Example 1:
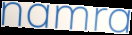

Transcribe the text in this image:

namra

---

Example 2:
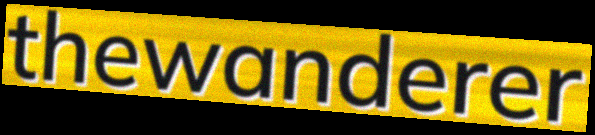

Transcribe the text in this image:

thewanderer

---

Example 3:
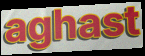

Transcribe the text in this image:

aghast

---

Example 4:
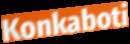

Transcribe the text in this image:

Konkaboti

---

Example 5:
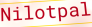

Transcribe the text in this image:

Nilotpal